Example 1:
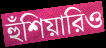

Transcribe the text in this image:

হুঁশিয়ারিও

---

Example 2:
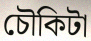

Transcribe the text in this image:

চৌকিটা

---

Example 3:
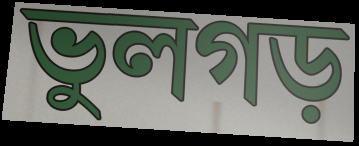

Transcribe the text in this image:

ভুলগড়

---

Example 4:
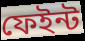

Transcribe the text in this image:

ফেইন্ট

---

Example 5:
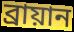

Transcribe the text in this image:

ব্রায়ান